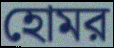
হোমর